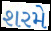
શરમે